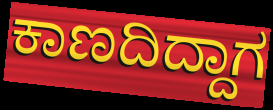
ಕಾಣದಿದ್ದಾಗ